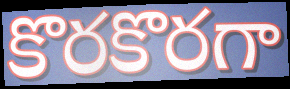
కొరకొరగా